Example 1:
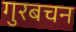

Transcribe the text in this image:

गुरबचन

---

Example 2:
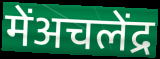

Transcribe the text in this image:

मेंअचलेंद्र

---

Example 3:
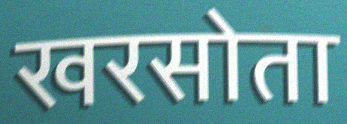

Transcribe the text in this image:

खरसोता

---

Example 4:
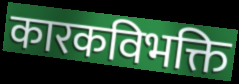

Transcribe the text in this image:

कारकविभक्ति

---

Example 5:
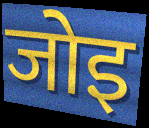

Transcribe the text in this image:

जोइ